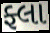
ફ્લા